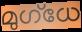
മുഗ്ധേ